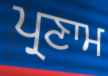
ਪ੍ਰਣਾਮ